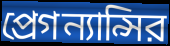
প্রেগন্যান্সির